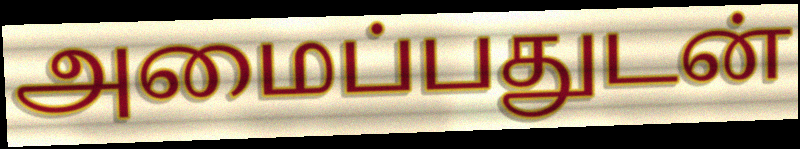
அமைப்பதுடன்